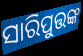
ସାରିପୁତ୍ତଙ୍କ